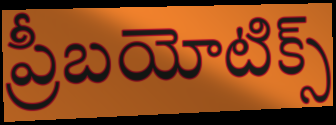
ప్రీబయోటిక్స్